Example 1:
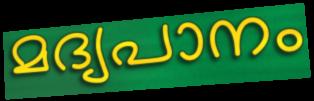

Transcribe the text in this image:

മദ്യപാനം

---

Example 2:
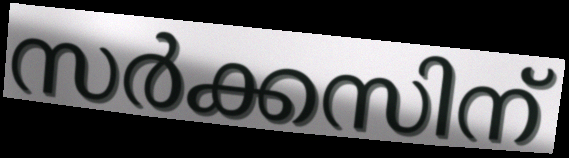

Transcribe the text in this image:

സർക്കസിന്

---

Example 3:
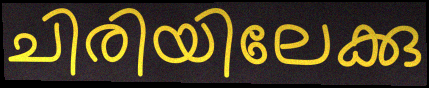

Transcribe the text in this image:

ചിരിയിലേക്കു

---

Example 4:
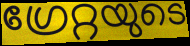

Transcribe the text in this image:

ഗ്രേറ്റയുടെ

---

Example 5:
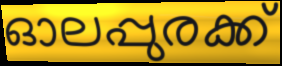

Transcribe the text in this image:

ഓലപ്പുരക്ക്